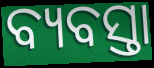
ବ୍ୟବସ୍ତା